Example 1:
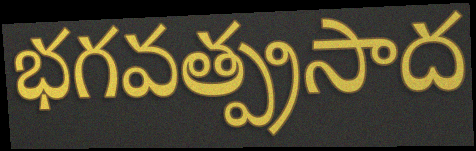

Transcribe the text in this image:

భగవత్ప్రసాద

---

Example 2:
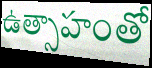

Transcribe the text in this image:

ఉత్సాహంతో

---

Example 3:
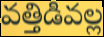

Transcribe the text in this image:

వత్తిడివల్ల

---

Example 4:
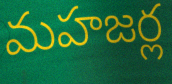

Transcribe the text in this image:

మహజర్ల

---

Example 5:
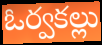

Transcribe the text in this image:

ఓర్వకల్లు